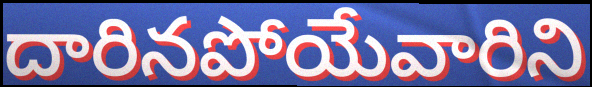
దారినపోయేవారిని